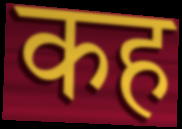
कह